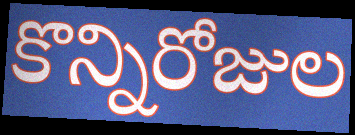
కొన్నిరోజుల